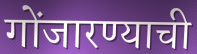
गोंजारण्याची